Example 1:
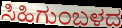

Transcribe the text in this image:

ಸಿಹಿಗುಂಬಳದ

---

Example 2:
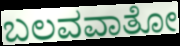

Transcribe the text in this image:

ಬಲವವಾತೋ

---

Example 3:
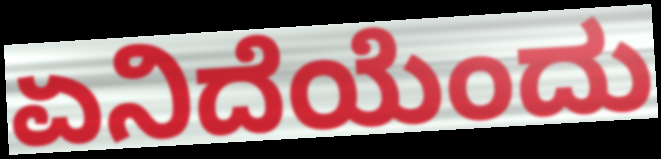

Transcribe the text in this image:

ಏನಿದೆಯೆಂದು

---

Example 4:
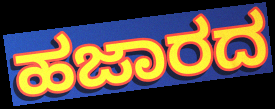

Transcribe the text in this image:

ಹಜಾರದ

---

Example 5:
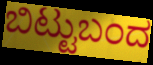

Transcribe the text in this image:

ಬಿಟ್ಟುಬಂದ